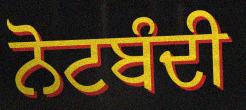
ਨੋਟਬੰਦੀ